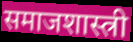
समाजशास्त्री